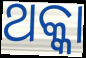
ଥକ୍କା